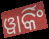
ୱାର୍କିଂ